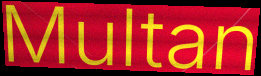
Multan